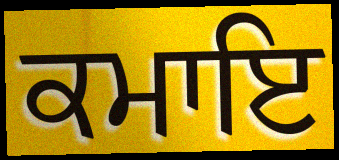
ਕਮਾਇ